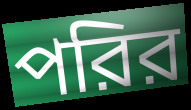
পরির